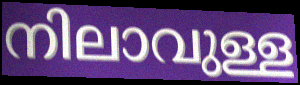
നിലാവുള്ള